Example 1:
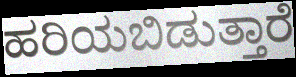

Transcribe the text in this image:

ಹರಿಯಬಿಡುತ್ತಾರೆ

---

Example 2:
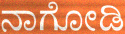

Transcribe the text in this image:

ನಾಗೋಡಿ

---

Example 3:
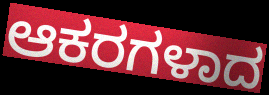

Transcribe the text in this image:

ಆಕರಗಳಾದ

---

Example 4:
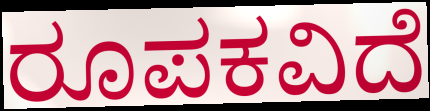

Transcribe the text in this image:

ರೂಪಕವಿದೆ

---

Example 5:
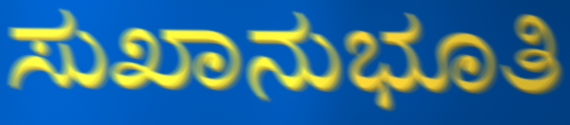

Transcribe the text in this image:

ಸುಖಾನುಭೂತಿ